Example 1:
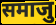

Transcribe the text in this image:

समाजु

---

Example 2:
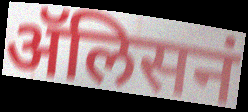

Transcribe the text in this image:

ॲलिसनं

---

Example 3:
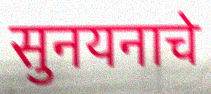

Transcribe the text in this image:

सुनयनाचे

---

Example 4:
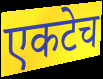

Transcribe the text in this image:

एकटेच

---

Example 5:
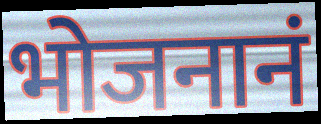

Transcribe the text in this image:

भोजनानं